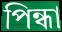
পিন্ধা